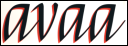
avaa